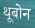
थूबोन